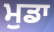
ਮੁਡਾ